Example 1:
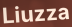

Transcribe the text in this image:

Liuzza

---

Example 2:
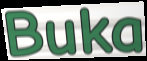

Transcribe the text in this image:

Buka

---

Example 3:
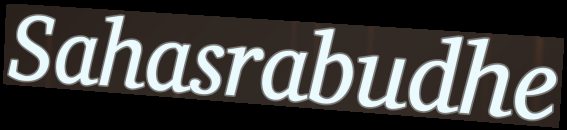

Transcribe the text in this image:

Sahasrabudhe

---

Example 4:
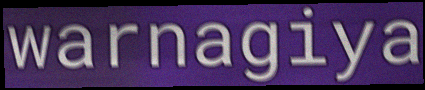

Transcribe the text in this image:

warnagiya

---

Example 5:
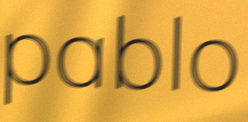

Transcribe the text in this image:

pablo